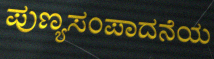
ಪುಣ್ಯಸಂಪಾದನೆಯ